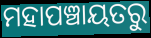
ମହାପଞ୍ଚାୟତରୁ